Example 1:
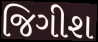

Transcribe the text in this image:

જિગીશ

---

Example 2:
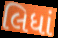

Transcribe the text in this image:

લિધાં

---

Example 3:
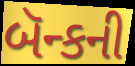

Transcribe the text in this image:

બૅન્કની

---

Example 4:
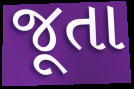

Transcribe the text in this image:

જૂતા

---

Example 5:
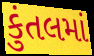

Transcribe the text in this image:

કુંતલમાં